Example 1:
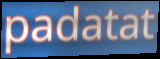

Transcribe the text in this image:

padatat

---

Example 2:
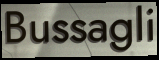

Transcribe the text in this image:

Bussagli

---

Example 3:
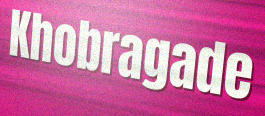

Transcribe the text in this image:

Khobragade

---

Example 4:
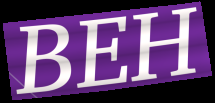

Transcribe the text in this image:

BEH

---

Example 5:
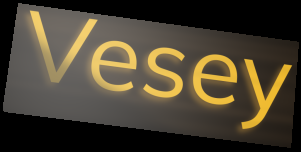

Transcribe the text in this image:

Vesey